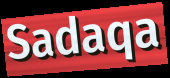
Sadaqa